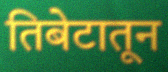
तिबेटातून